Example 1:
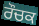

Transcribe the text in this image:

ਰੌਚਕ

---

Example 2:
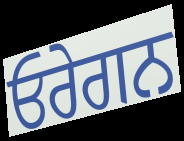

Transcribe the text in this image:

ਓਰੇਗਨ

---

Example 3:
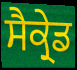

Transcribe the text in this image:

ਸੈਕ੍ਰੇਡ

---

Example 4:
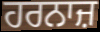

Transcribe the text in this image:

ਹਰਨਾਜ਼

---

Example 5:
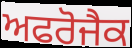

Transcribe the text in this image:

ਅਫਰੋਜੈਕ